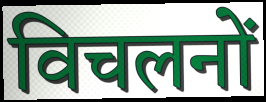
विचलनों